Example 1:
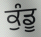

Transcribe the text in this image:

ਕੁੰਡੂ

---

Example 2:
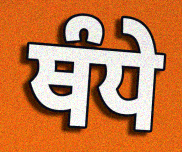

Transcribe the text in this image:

ਥੰਧੇ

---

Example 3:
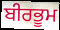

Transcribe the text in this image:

ਬੀਰਭੂਮ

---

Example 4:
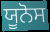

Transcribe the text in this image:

ਯੂਨੋਸ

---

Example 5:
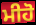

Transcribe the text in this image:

ਮੀਹੋ